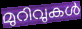
മുറിവുകൾ